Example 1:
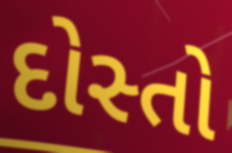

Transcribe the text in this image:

દોસ્તો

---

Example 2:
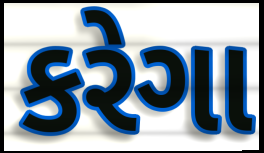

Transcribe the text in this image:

કરેગા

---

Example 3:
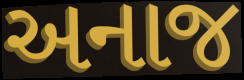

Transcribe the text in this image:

અનાજ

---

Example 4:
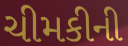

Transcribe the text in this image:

ચીમકીની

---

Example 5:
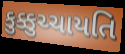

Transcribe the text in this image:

કુક્કુચ્ચાયતિ